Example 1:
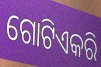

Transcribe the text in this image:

ଗୋଟିଏକରି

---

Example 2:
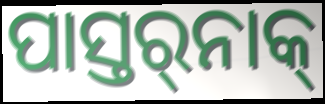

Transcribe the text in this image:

ପାସ୍ତର୍‍ନାକ୍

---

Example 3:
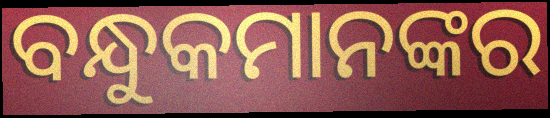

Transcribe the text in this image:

ବନ୍ଧୁକମାନଙ୍କର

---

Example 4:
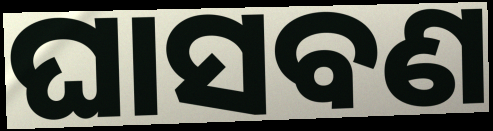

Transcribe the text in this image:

ଘାସବଣ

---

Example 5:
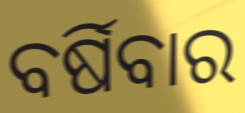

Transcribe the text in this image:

ବର୍ଷିବାର